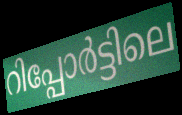
റിപ്പോർട്ടിലെ